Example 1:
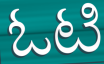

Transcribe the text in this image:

ಓಟಿ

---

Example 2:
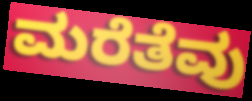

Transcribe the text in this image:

ಮರೆತೆವು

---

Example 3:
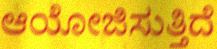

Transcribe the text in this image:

ಆಯೋಜಿಸುತ್ತಿದೆ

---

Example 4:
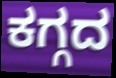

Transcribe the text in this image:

ಕಗ್ಗದ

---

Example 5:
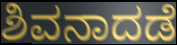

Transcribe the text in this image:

ಶಿವನಾದಡೆ